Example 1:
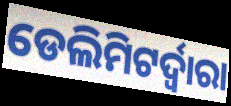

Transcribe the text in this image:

ଡେଲିମିଟର୍ଦ୍ୱାରା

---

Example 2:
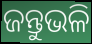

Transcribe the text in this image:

ଜନ୍ତୁଭଳି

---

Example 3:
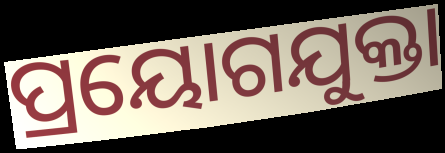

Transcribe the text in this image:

ପ୍ରୟୋଗଯୁକ୍ତା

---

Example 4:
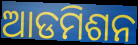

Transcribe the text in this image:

ଆଡମିଶନ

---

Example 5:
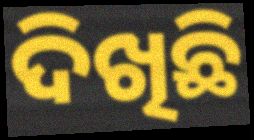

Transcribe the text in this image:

ଦିଖିଛି